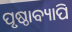
ପୃଷ୍ଠାବ୍ୟାପି